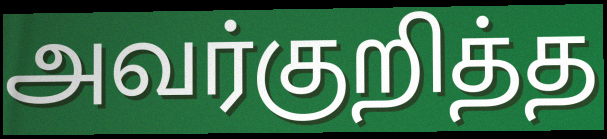
அவர்குறித்த